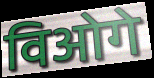
विओगे